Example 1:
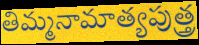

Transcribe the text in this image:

తిమ్మనామాత్యపుత్త్ర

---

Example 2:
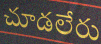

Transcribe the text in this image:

చూడలేరు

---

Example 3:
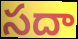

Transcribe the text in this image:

సదా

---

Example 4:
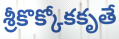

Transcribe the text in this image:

శ్రీకొక్కోకకృతే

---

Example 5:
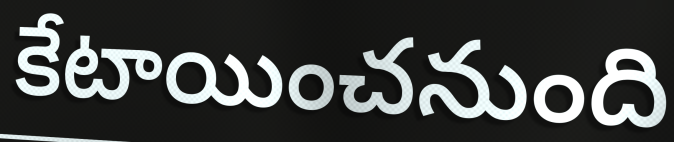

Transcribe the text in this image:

కేటాయించనుంది